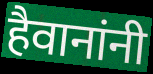
हैवानांनी